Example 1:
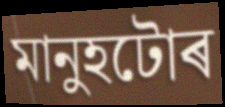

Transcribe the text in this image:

মানুহটোৰ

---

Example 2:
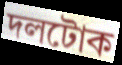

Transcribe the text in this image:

দলটোক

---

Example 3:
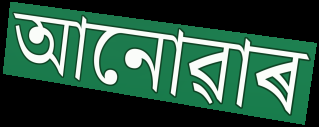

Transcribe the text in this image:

আনোৱাৰ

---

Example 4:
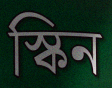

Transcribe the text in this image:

স্কিন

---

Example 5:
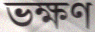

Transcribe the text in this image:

ভক্ষণ